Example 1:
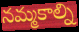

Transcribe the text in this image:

నమ్మకాల్ని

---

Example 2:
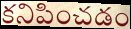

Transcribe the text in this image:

కనిపించడం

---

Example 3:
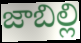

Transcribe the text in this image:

జాబిల్లి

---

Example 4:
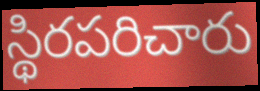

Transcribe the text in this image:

స్థిరపరిచారు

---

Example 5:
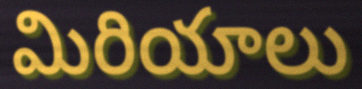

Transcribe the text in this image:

మిరియాలు